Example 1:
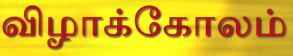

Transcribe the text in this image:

விழாக்கோலம்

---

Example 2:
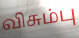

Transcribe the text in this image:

விசும்பு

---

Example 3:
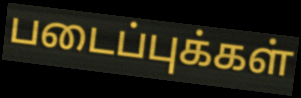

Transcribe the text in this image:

படைப்புக்கள்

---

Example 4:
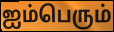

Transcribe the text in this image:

ஐம்பெரும்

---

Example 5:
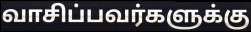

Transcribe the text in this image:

வாசிப்பவர்களுக்கு